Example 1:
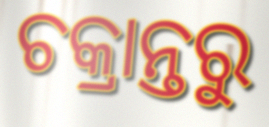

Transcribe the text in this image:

ଚକ୍ରାନ୍ତରୁ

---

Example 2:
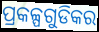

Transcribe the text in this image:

ପ୍ରକଳ୍ପଗୁଡିକର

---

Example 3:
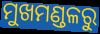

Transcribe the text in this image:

ମୁଖମଣ୍ଡଳରୁ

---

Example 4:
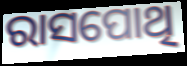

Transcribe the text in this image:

ରାସପୋଥି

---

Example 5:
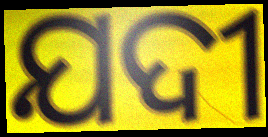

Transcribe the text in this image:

ଯଦୀ